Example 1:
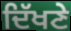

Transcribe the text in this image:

ਦਿੱਖਣੇ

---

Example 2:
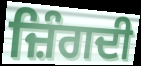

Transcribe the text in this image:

ਜ਼ਿੰਗਦੀ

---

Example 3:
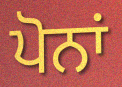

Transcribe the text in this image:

ਪੋਨਾਂ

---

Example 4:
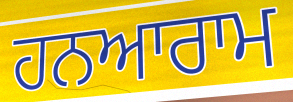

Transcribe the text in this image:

ਹਨਆਰਾਮ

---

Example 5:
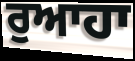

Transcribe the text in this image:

ਰੁਆਹਾ